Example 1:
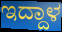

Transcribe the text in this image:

ಇದ್ದಾಳ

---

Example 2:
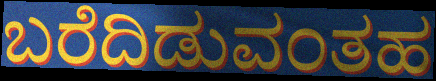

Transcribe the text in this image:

ಬರೆದಿಡುವಂತಹ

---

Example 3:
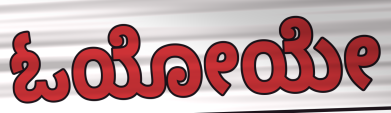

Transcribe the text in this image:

ಓಯೋಯೇ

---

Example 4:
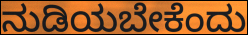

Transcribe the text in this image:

ನುಡಿಯಬೇಕೆಂದು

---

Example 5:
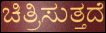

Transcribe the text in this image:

ಚಿತ್ರಿಸುತ್ತದೆ